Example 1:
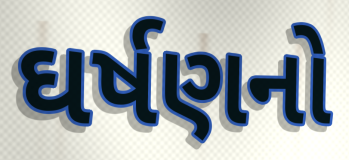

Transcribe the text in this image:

ઘર્ષણનો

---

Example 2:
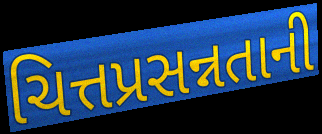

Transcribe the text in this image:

ચિત્તપ્રસન્નતાની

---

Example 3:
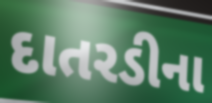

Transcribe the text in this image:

દાતરડીના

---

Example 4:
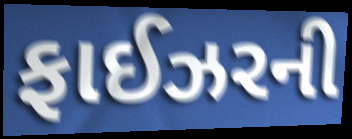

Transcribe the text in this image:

ફાઈઝરની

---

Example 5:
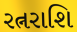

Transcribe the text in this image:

રત્નરાશિ